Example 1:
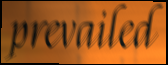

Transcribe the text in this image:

prevailed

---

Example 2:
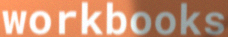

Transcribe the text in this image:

workbooks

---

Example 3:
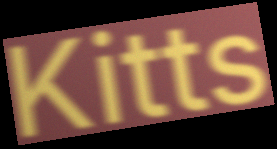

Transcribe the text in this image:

Kitts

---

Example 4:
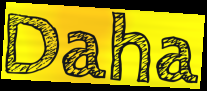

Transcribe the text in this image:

Daha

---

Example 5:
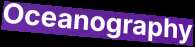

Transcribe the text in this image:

Oceanography